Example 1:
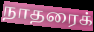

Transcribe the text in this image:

நாதரைக்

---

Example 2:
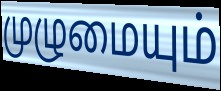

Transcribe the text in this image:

முழுமையும்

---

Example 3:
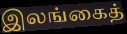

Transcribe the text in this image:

இலங்கைத்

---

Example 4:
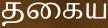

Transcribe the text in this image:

தகைய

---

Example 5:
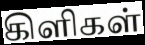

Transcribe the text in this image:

கிளிகள்